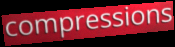
compressions